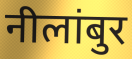
नीलांबुर